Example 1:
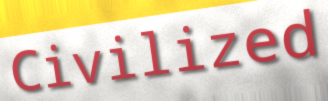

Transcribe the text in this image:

Civilized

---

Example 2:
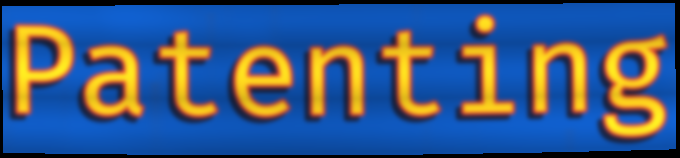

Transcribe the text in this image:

Patenting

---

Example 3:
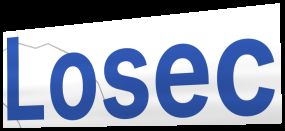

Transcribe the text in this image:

Losec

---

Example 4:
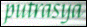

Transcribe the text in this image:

putrasya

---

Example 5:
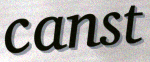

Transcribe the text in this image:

canst